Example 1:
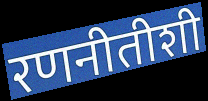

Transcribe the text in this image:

रणनीतीशी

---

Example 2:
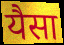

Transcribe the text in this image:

यैसा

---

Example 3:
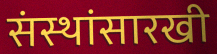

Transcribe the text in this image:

संस्थांसारखी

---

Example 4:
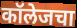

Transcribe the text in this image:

कॉलेजचा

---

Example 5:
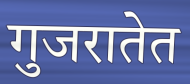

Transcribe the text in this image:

गुजरातेत